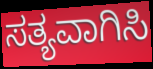
ಸತ್ಯವಾಗಿಸಿ